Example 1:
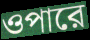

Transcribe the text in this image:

ওপারে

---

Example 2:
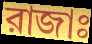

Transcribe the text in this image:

রাজাঃ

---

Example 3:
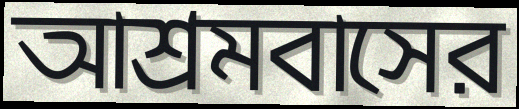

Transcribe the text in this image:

আশ্রমবাসের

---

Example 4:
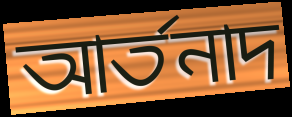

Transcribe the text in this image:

আর্তনাদ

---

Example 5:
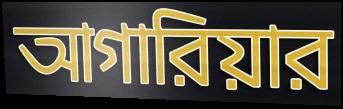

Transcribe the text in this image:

আগারিয়ার